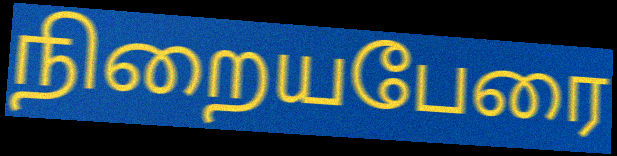
நிறையபேரை